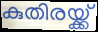
കുതിരയ്ക്ക്